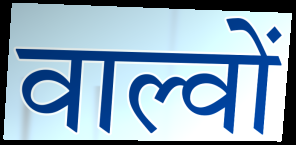
वाल्वों